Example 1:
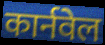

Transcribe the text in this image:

कार्नवेल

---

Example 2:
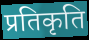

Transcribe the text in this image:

प्रतिकृति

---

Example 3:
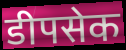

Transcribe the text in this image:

डीपसेक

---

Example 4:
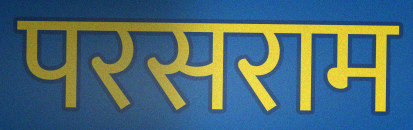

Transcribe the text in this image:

परसराम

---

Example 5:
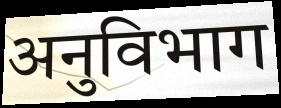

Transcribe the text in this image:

अनुविभाग